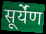
सूर्ये॑ण